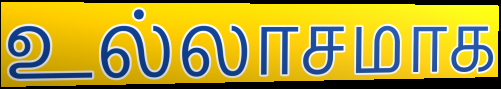
உல்லாசமாக